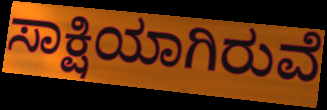
ಸಾಕ್ಷಿಯಾಗಿರುವೆ